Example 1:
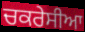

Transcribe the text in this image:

ਚਕਰੇਸੀਆ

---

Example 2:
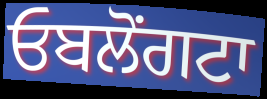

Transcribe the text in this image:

ਓਬਲੋਂਗਟਾ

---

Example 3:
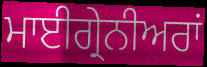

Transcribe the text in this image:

ਮਾਈਗ੍ਰੇਨੀਅਰਾਂ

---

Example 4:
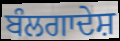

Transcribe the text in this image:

ਬੰਲਗਾਦੇਸ਼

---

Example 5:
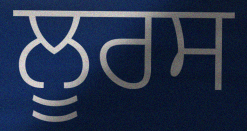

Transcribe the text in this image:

ਲੂਰਸ